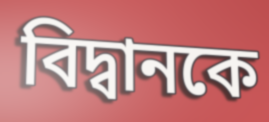
বিদ্বানকে